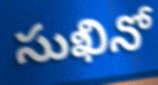
సుఖినో